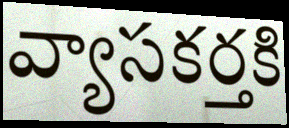
వ్యాసకర్తకి